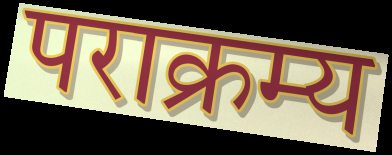
पराक्रम्य